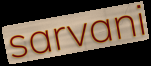
sarvani